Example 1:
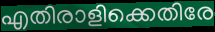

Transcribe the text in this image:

എതിരാളിക്കെതിരേ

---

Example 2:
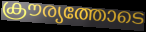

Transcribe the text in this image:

ക്രൗര്യത്തോടെ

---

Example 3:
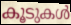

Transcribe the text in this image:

കൂടുകൾ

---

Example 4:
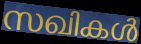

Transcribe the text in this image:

സഖികൾ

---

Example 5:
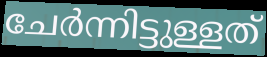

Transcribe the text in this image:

ചേർന്നിട്ടുള്ളത്